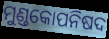
ମୁଣ୍ଡକୋପନିଷଦ